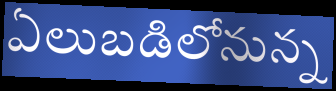
ఏలుబడిలోనున్న